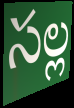
సల్ల